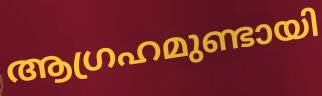
ആഗ്രഹമുണ്ടായി